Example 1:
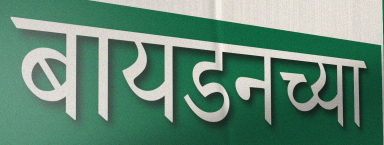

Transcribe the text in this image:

बायडनच्या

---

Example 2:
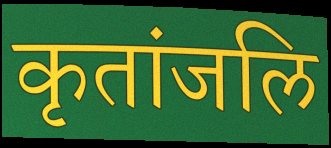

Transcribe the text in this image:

कृतांजलि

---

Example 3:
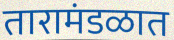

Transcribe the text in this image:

तारामंडळात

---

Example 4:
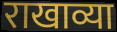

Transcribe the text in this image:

राखाव्या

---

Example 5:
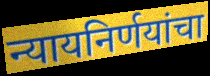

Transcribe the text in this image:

न्यायनिर्णयांचा